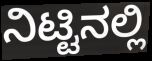
ನಿಟ್ಟಿನಲ್ಲಿ